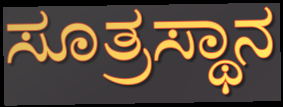
ಸೂತ್ರಸ್ಥಾನ